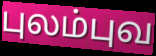
புலம்புவ